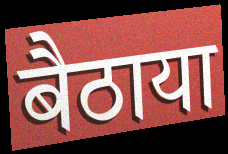
बैठाया